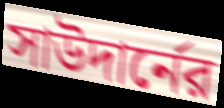
সাউদার্নের